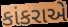
કાંકરાએ